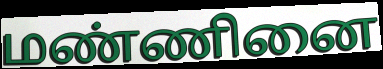
மண்ணினை